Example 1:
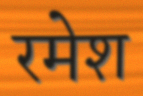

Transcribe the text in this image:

रमेश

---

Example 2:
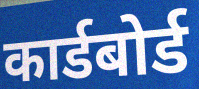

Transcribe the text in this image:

कार्डबोर्ड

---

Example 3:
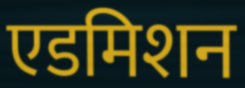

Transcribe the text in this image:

एडमिशन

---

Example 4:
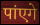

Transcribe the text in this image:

पांएगे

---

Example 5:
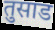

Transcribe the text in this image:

तुसाड